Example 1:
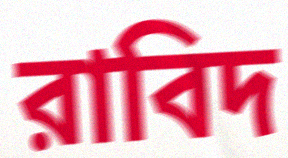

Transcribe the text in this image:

রাবিদ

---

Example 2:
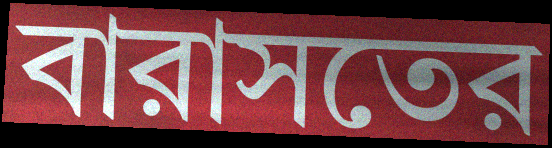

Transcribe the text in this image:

বারাসতের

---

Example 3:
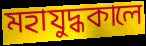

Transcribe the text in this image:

মহাযুদ্ধকালে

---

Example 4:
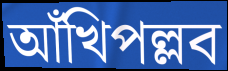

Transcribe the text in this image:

আঁখিপল্লব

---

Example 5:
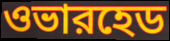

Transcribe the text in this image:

ওভারহেড